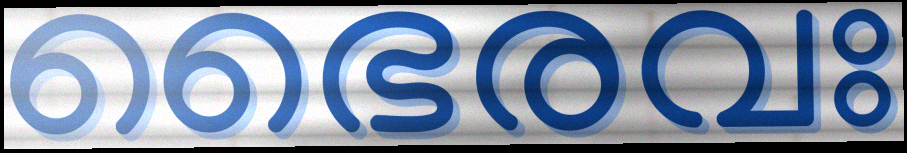
ഭൈരവഃ